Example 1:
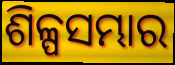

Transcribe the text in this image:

ଶିଳ୍ପସମ୍ଭାର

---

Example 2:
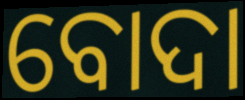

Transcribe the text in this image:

ବୋଦା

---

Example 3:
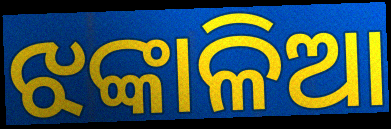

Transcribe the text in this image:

ଝଙ୍କାଳିଆ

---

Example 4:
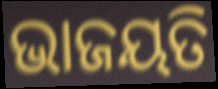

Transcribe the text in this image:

ଭାଜୟତି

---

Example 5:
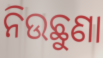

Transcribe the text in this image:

ନିଉଛୁଣା